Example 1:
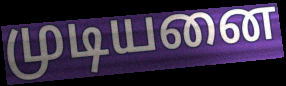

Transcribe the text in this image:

முடியனை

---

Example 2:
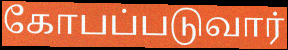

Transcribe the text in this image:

கோபப்படுவார்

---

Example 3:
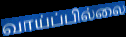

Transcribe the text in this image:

வாய்ப்பில்லை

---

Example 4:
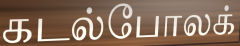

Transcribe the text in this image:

கடல்போலக்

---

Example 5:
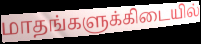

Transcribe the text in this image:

மாதங்களுக்கிடையில்